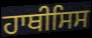
ਹਾਥੀਸਿਸ